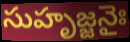
సుహృజ్జనైః